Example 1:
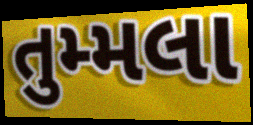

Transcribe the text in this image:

તુમ્મલા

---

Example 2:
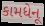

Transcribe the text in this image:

કામધેનૂ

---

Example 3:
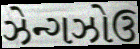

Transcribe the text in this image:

ઝેન્ગઝોઉ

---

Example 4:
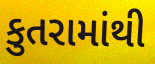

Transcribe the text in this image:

કુતરામાંથી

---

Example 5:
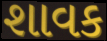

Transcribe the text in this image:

શાવક